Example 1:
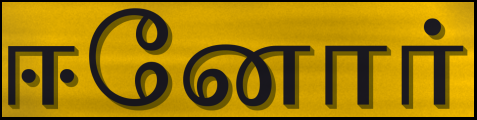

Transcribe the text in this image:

ஈனோர்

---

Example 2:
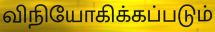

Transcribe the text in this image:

விநியோகிக்கப்படும்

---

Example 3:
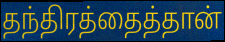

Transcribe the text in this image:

தந்திரத்தைத்தான்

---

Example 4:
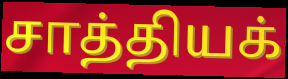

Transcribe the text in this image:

சாத்தியக்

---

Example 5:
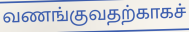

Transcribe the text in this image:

வணங்குவதற்காகச்